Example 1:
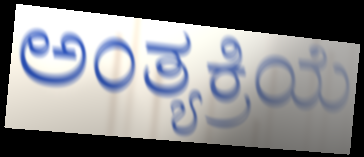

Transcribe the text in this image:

ಅಂತ್ಯಕ್ರಿಯೆ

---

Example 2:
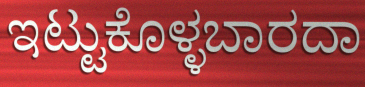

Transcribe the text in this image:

ಇಟ್ಟುಕೊಳ್ಳಬಾರದಾ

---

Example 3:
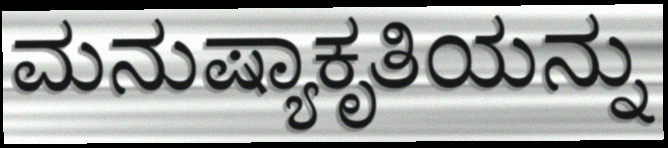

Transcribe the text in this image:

ಮನುಷ್ಯಾಕೃತಿಯನ್ನು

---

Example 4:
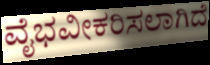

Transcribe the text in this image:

ವೈಭವೀಕರಿಸಲಾಗಿದೆ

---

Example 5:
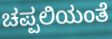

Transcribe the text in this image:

ಚಪ್ಪಲಿಯಂತೆ